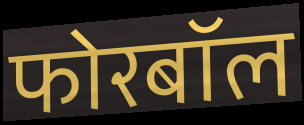
फोरबॉल